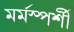
মৰ্মস্পৰ্শী